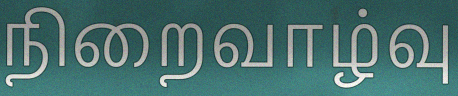
நிறைவாழ்வு